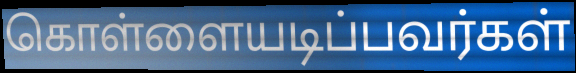
கொள்ளையடிப்பவர்கள்